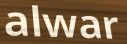
alwar